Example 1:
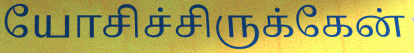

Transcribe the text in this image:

யோசிச்சிருக்கேன்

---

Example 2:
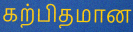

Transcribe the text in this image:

கற்பிதமான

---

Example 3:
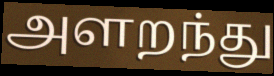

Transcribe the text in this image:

அளறந்து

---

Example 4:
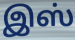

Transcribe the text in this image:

இஸ்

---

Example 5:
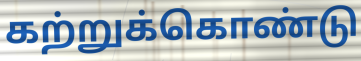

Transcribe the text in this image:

கற்றுக்கொண்டு